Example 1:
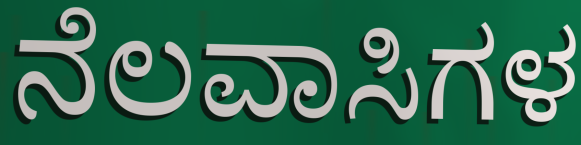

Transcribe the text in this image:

ನೆಲವಾಸಿಗಳ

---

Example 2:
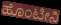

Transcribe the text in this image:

ಹೊಂಟೀನಿ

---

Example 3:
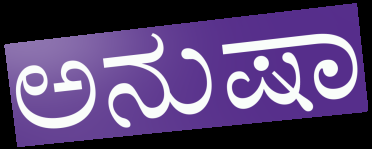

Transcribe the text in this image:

ಅನುಷಾ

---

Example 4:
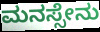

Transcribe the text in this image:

ಮನಸ್ಸೇನು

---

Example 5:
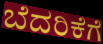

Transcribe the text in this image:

ಬೆದರಿಕೆಗೆ